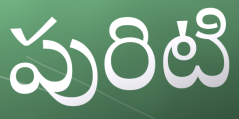
పురిటి